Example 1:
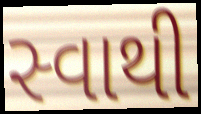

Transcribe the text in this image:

સ્વાથી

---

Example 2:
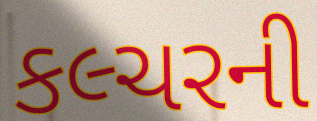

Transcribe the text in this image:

કલ્ચરની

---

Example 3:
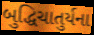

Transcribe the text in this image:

બુદ્ધિચાતુર્યના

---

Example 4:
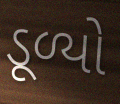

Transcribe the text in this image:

ડૂળ્યો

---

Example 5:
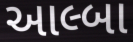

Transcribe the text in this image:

આલ્બા